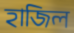
হাজিল